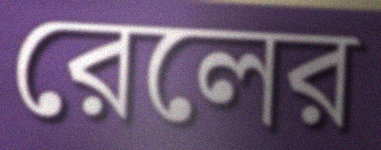
রেলের